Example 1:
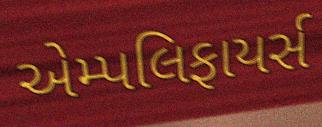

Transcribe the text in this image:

એમ્પલિફાયર્સ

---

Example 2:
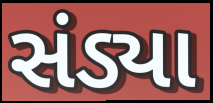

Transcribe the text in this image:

સંડ્યા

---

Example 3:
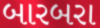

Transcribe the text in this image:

બારબરા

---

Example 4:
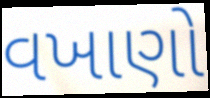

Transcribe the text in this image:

વખાણો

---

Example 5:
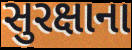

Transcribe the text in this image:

સુરક્ષાના